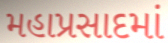
મહાપ્રસાદમાં